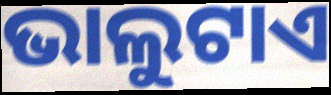
ଭାଲୁଟାଏ